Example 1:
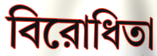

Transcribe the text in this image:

বিরোধিতা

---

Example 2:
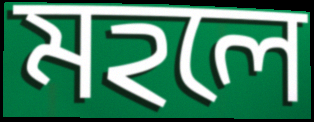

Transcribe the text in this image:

মহলে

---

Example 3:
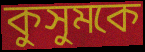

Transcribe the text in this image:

কুসুমকে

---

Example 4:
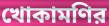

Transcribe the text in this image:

খোকামণির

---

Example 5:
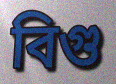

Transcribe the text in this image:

বিগু